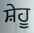
ਸ਼ੇਹੂ